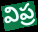
విప్ర